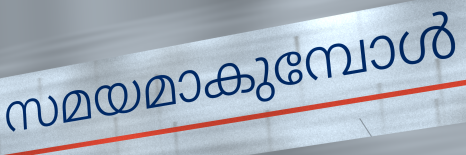
സമയമാകുമ്പോൾ